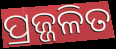
ପ୍ରଜ୍ଜଳିତ